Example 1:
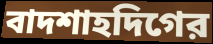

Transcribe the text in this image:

বাদশাহদিগের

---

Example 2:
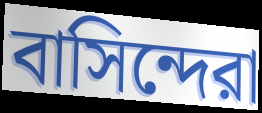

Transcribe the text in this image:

বাসিন্দেরা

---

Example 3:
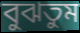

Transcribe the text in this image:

বুঝতুম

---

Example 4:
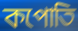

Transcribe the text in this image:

কপোতি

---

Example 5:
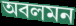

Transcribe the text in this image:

অবলমন